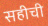
सहीची